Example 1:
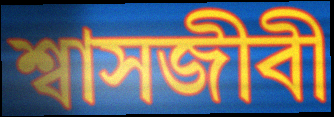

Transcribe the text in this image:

শ্বাসজীবী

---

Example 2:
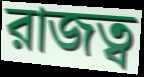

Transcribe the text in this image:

রাজত্ব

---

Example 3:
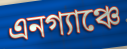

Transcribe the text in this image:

এনগ্যাঞ্চে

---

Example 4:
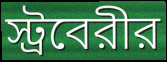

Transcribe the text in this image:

স্ট্রবেরীর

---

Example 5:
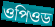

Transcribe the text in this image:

ওপিওড